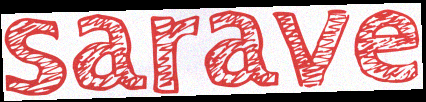
sarave